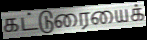
கட்டுரையைக்